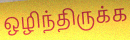
ஒழிந்திருக்க